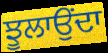
ਝੂਲਾਉਂਦਾ